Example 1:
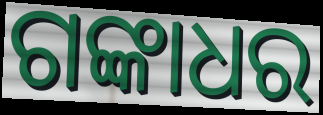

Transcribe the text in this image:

ଗଙ୍କାଧର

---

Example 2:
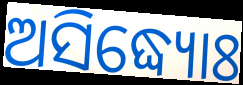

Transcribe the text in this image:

ଅସିଦ୍ଧ୍ୟୋଃ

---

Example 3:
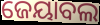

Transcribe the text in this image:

ଜେୟାବଲ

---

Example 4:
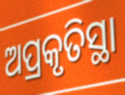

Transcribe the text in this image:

ଅପ୍ରକୃତିସ୍ଥା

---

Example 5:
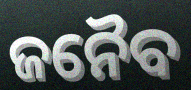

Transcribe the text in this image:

ଜନୈବ